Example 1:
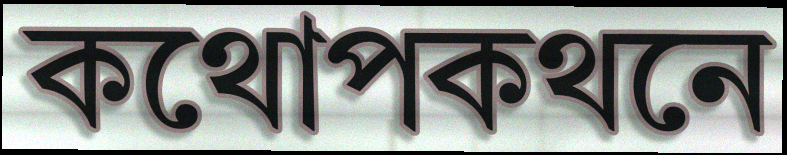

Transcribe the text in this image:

কথোপকথনে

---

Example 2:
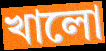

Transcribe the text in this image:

খালো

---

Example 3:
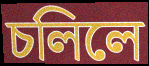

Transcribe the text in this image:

চলিলে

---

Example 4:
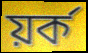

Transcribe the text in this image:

য়ৰ্ক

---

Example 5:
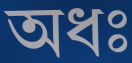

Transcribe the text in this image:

অধঃ